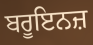
ਬਰੂਇਨਜ਼